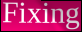
Fixing